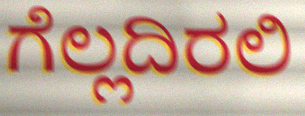
ಗೆಲ್ಲದಿರಲಿ